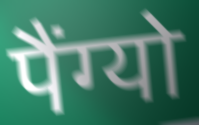
पैंग्यो